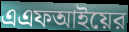
এএফআইয়ের